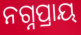
ନଗ୍ନପ୍ରାୟ